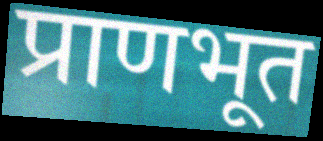
प्राणभूत